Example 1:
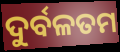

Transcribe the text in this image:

ଦୁର୍ବଳତମ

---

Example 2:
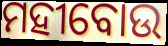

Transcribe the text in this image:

ମହୀବୋଉ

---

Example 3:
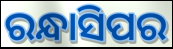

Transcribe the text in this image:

ରନ୍ଧାସିପର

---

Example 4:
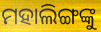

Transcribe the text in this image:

ମହାଲିଙ୍ଗଙ୍କୁ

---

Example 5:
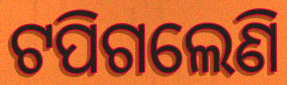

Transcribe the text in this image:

ଟପିଗଲେଣି